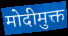
मोदीमुक्त